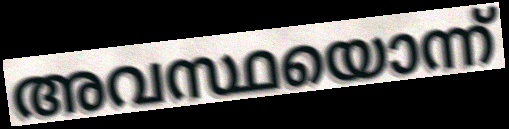
അവസ്ഥയൊന്ന്